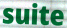
suite